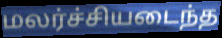
மலர்ச்சியடைந்த